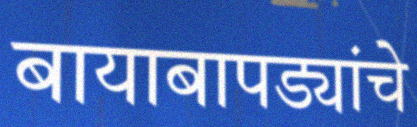
बायाबापड्यांचे